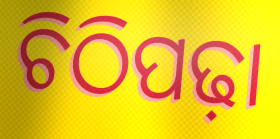
ଚିଠିପଢ଼ା